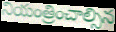
నియంత్రించాల్సిన